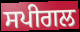
ਸਪੀਗਲ